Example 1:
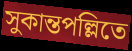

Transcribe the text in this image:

সুকান্তপল্লিতে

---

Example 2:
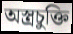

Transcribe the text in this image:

অস্ত্রচুক্তি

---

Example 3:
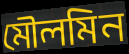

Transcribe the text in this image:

মৌলমিন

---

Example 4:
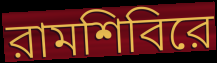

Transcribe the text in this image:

রামশিবিরে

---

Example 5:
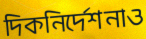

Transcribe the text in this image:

দিকনির্দেশনাও